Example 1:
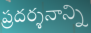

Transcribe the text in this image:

ప్రదర్శనాన్ని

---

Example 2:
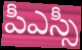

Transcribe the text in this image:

పీఎస్సీ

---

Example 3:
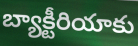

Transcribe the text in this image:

బ్యాక్టీరియాకు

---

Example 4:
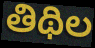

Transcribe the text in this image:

తిథిల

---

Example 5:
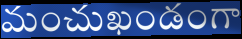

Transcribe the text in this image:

మంచుఖండంగా